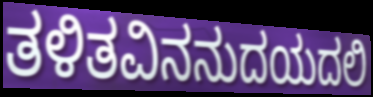
ತಳಿತವಿನನುದಯದಲಿ